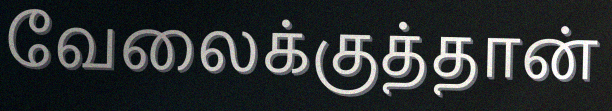
வேலைக்குத்தான்